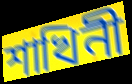
শাখিনী